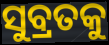
ସୁବ୍ରତକୁ